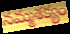
నమ్మశక్యం